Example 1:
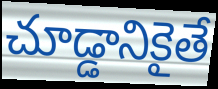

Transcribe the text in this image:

చూడ్డానికైతే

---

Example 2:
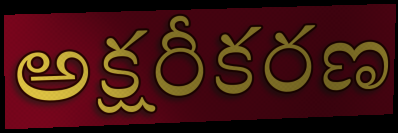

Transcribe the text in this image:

అక్షరీకరణ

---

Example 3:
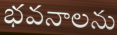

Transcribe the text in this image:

భవనాలను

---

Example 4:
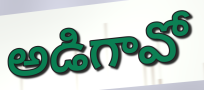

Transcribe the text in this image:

అడిగావో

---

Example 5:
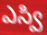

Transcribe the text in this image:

ఎస్వి